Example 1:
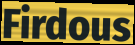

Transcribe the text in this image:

Firdous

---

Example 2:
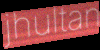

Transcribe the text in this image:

jhultan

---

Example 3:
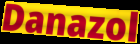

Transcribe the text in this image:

Danazol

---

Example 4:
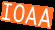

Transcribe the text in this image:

IOAA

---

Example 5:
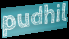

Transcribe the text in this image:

pudhil